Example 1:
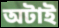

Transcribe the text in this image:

অটাই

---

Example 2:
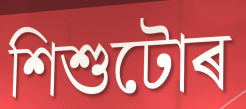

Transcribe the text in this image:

শিশুটোৰ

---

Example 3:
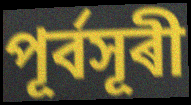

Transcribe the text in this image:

পূৰ্বসূৰী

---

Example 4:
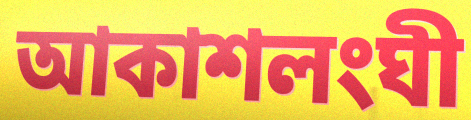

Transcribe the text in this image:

আকাশলংঘী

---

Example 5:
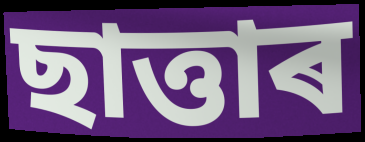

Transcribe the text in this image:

ছাত্তাৰ